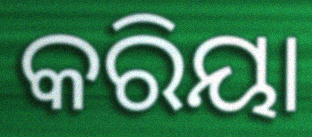
କରିୟା